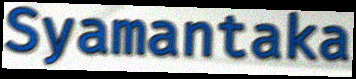
Syamantaka